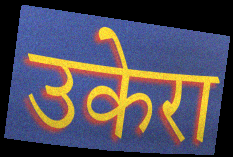
उकेरा